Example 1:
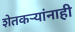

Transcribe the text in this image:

शेतकऱ्यांनाही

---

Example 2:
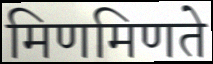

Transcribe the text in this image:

मिणमिणते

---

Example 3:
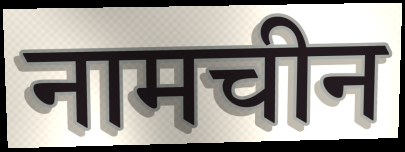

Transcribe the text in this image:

नामचीन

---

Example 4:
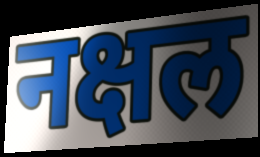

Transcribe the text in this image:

नक्षल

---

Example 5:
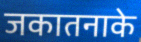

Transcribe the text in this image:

जकातनाके